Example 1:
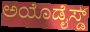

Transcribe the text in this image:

ಅಯೊಡೈಸ್ಡ್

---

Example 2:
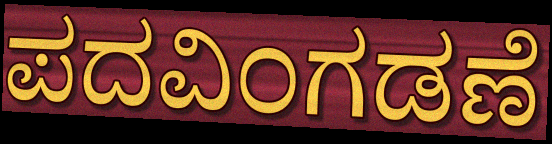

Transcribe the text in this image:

ಪದವಿಂಗಡಣೆ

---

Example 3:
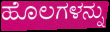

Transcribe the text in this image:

ಹೊಲಗಳನ್ನು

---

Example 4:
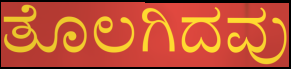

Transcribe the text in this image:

ತೊಲಗಿದವು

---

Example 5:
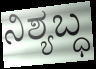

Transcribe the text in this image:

ನಿಶ್ಯಬ್ಧ